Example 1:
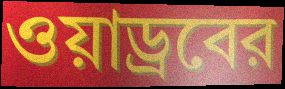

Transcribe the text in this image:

ওয়াড্রবের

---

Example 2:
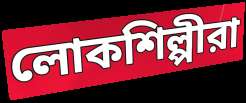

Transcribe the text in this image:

লোকশিল্পীরা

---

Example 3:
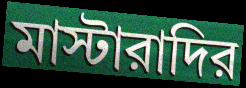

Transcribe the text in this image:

মাস্টারাদির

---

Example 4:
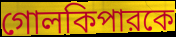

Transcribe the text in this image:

গোলকিপারকে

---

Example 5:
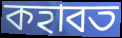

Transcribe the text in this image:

কহাবত